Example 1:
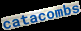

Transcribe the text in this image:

catacombs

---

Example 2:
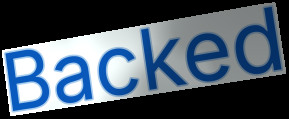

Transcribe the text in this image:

Backed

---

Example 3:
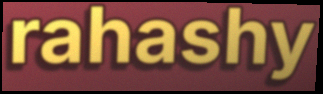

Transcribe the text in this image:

rahashy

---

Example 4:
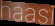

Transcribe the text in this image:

haasi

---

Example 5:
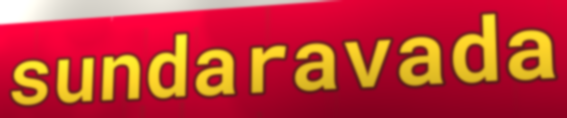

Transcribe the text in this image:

sundaravada